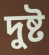
দুষ্ট